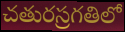
చతురస్రగతిలో